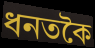
ধনতকৈ